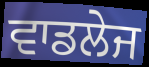
ਵਾਡਲੇਜ